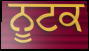
ਨੂਟਕ